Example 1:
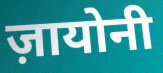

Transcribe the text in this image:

ज़ायोनी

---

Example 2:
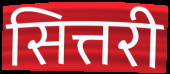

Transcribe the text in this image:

सित्तरी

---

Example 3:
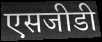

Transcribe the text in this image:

एसजीडी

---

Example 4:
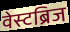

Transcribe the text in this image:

वेस्टब्रिज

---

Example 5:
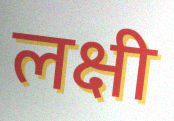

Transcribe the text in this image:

लक्षी